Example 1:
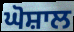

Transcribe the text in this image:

ਘੋਸ਼ਾਲ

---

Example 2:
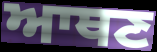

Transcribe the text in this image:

ਆਥਣ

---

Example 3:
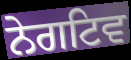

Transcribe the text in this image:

ਨੇਗਟਿਵ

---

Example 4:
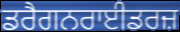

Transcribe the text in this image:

ਡਰੈਗਨਰਾਈਡਰਜ਼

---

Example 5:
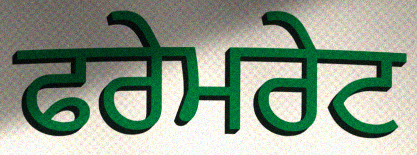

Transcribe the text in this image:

ਫਰੇਮਰੇਟ